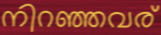
നിറഞ്ഞവര്